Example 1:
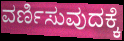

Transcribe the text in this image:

ವರ್ಣಿಸುವುದಕ್ಕೆ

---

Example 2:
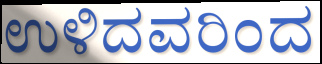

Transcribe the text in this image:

ಉಳಿದವರಿಂದ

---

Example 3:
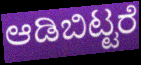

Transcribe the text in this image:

ಆಡಿಬಿಟ್ಟರೆ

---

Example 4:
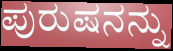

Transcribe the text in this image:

ಪುರುಷನನ್ನು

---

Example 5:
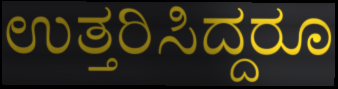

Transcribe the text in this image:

ಉತ್ತರಿಸಿದ್ದರೂ